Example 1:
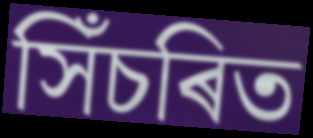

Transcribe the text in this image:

সিঁচৰিত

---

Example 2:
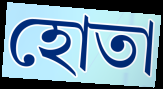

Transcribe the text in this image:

হোতা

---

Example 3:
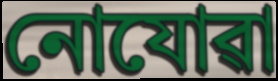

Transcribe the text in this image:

নোযোৱা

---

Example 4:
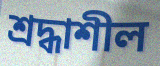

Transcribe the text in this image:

শ্ৰদ্ধাশীল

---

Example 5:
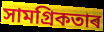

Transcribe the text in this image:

সামগ্ৰিকতাৰ